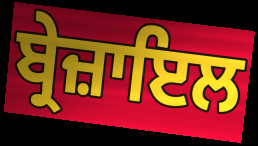
ਬ੍ਰੇਜ਼ਾਇਲ